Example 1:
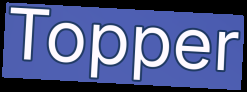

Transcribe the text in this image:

Topper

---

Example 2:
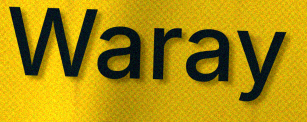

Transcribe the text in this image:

Waray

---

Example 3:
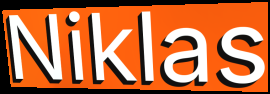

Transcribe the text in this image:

Niklas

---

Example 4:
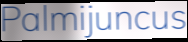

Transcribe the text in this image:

Palmijuncus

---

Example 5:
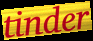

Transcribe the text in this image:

tinder